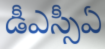
డీఎస్సీఏ